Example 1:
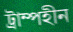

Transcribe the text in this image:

ট্রাম্পহীন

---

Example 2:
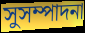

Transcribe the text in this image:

সুসম্পাদনা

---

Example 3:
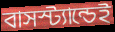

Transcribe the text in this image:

বাসস্ট্যান্ডেই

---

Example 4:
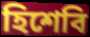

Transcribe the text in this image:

হিশেবি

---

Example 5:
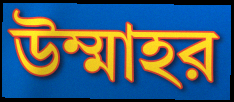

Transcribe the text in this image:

উম্মাহর